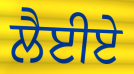
ਲੈਈਏ